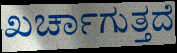
ಖರ್ಚಾಗುತ್ತದೆ